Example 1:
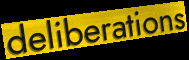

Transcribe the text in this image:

deliberations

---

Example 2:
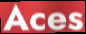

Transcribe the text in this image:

Aces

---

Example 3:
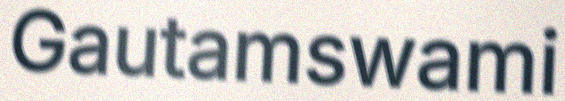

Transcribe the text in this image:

Gautamswami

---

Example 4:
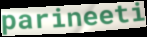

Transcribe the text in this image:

parineeti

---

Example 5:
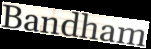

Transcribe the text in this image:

Bandham